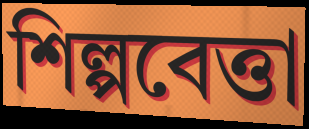
শিল্পবেত্তা